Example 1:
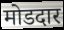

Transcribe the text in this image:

मोडदार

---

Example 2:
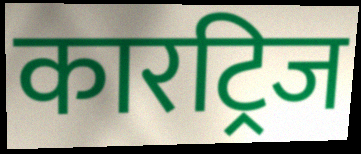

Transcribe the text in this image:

कारट्रिज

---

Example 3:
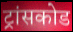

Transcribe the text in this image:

ट्रांसकोड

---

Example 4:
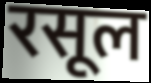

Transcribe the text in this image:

रसूल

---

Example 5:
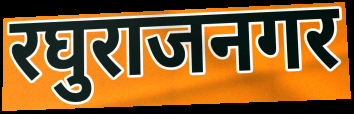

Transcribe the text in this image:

रघुराजनगर